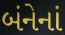
બંનેનાં